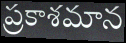
ప్రకాశమాన